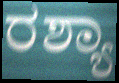
ರಶ್ಯಾ